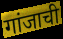
गांजाची